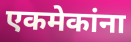
एकमेकांना